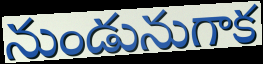
నుండునుగాక